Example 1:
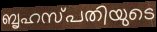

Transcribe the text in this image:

ബൃഹസ്പതിയുടെ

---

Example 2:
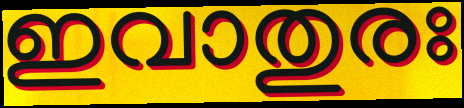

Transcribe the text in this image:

ഇവാതുരഃ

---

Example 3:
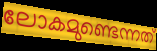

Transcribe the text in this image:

ലോകമുണ്ടെന്നത്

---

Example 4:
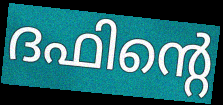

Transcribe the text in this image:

ദഫിന്റെ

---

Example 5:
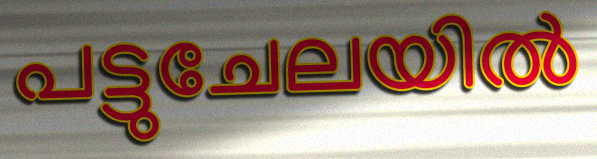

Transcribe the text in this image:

പട്ടുചേലയിൽ